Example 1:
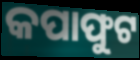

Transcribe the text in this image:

କପାଫୁଟ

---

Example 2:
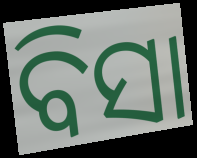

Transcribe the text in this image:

ବିସା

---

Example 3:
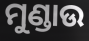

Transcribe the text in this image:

ମୁଣ୍ଡାଉ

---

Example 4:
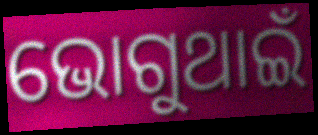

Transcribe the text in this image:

ଭୋଗୁଥାଇଁ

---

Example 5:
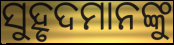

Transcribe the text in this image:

ସୁହୃଦମାନଙ୍କୁ